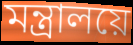
মন্ত্ৰালয়ে